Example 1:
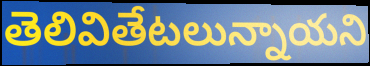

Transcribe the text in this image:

తెలివితేటలున్నాయని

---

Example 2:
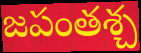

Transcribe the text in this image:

జపంతశ్చ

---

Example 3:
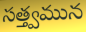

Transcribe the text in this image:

సత్త్వమున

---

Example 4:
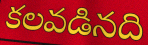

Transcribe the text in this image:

కలవడినది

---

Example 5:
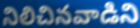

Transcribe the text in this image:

నిలిచినవాడిని